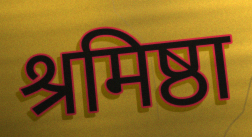
श्रमिष्ठा